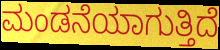
ಮಂಡನೆಯಾಗುತ್ತಿದೆ